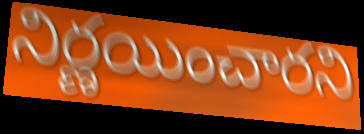
నిర్ణయించారని